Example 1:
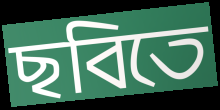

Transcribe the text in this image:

ছবিতে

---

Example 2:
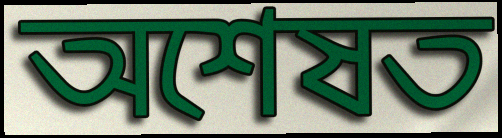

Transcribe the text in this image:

অশেষত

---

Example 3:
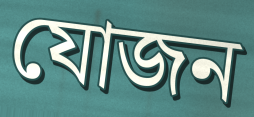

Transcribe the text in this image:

যোজন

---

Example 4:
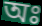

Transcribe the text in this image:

অঃ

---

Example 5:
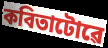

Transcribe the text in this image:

কবিতাটোৱে